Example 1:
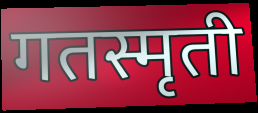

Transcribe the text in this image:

गतस्मृती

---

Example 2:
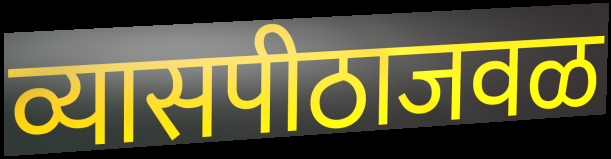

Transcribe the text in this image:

व्यासपीठाजवळ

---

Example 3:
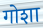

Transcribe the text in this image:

गोशा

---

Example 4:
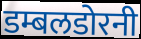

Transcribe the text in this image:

डम्बलडोरनी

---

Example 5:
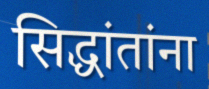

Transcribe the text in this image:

सिद्धांतांना